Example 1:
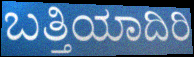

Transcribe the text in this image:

ಬತ್ತಿಯಾದಿರಿ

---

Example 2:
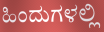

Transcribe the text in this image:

ಹಿಂದುಗಳಲ್ಲಿ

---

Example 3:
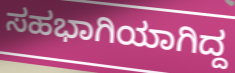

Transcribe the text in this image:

ಸಹಭಾಗಿಯಾಗಿದ್ದ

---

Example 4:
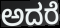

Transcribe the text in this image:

ಅದರೆ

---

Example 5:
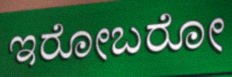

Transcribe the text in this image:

ಇರೋಬರೋ